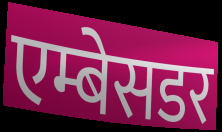
एम्बेसडर